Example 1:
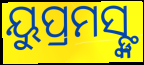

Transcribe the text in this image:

ୟୁପ୍ରମସ୍ଙ୍କ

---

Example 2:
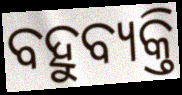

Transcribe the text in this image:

ବହୁବ୍ୟକ୍ତି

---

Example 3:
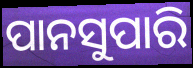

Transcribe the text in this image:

ପାନସୁପାରି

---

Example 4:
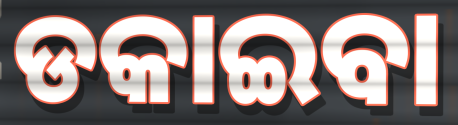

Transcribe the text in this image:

ଡକାଇବା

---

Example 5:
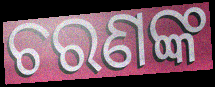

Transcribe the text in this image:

ଚରଣଙ୍କ